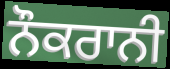
ਨੌਕਰਾਨੀ